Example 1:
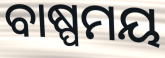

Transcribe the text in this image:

ବାଷ୍ପମୟ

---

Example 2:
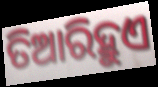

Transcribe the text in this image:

ତିଆରିହୁଏ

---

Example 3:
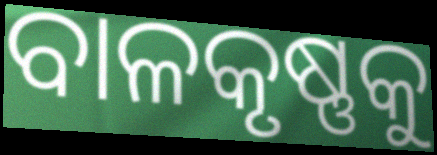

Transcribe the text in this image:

ବାଳକୃଷ୍ଣକୁ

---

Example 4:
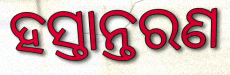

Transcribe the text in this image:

ହସ୍ତାନ୍ତରଣ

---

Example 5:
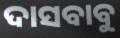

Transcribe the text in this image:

ଦାସବାବୁ